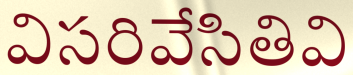
విసరివేసితివి